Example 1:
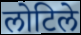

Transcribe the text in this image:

लोटिले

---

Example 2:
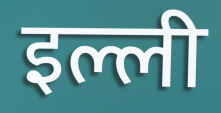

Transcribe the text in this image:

इल्ली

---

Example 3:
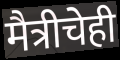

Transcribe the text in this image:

मैत्रीचेही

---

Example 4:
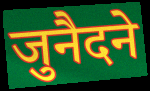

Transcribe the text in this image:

जुनैदने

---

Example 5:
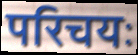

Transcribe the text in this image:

परिचयः